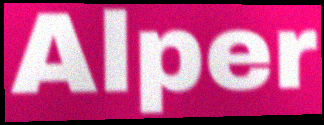
Alper